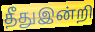
தீதுஇன்றி